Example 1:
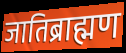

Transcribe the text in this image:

जातिब्राह्मण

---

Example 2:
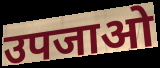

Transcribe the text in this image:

उपजाओ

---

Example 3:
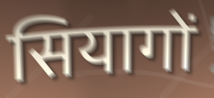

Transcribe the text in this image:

सियागों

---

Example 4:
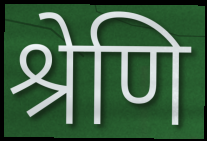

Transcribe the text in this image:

श्रेणि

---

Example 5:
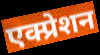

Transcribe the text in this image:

एक्प्रेशन